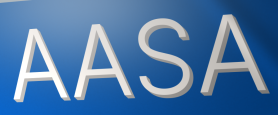
AASA